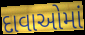
દાવાઓમાં